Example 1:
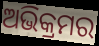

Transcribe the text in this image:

ଅଭିକ୍ରମର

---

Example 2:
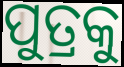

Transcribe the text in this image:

ପୁତ୍ରକୁ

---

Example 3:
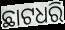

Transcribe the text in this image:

ଛାଟଧରି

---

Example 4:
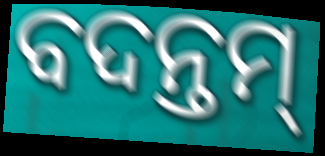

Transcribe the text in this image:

ବଦନ୍ତମ୍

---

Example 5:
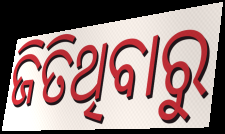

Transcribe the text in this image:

ଜିତିଥିବାରୁ